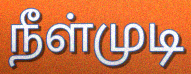
நீள்முடி